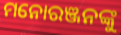
ମନୋରଞ୍ଜନଙ୍କୁ